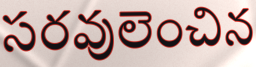
సరవులెంచిన